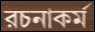
রচনাকর্ম